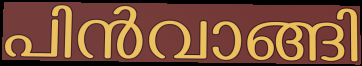
പിൻവാങ്ങി